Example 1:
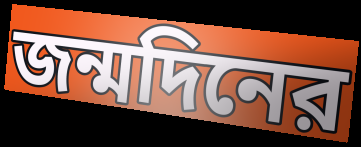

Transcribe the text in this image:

জন্মদিনের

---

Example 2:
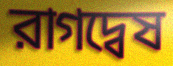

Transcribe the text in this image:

রাগদ্বেষ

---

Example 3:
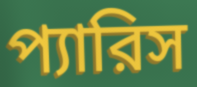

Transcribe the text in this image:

প্যারিস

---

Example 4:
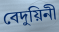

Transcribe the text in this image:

বেদুয়িনী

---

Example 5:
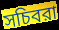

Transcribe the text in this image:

সচিবরা